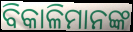
ବିକାଳିମାନଙ୍କ